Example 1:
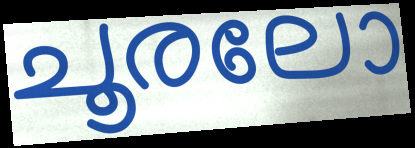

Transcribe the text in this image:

ചൂരലോ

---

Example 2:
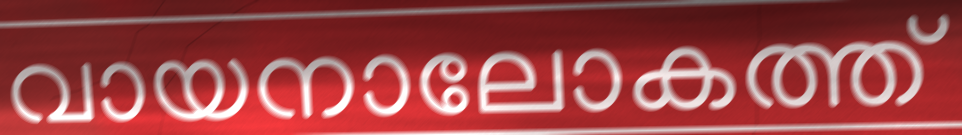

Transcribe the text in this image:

വായനാലോകത്ത്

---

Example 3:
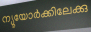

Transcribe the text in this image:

ന്യൂയോർക്കിലേക്കു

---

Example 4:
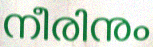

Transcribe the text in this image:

നീരിനും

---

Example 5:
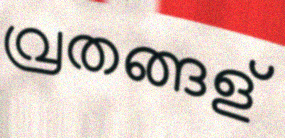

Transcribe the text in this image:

വ്രതങ്ങള്